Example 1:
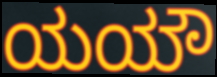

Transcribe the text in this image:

ಯಯೌ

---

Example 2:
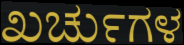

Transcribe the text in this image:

ಖರ್ಚುಗಳ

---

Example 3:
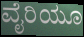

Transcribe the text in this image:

ವೈರಿಯೂ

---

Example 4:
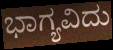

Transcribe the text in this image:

ಭಾಗ್ಯವಿದು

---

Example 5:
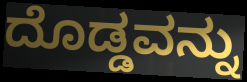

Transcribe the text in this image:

ದೊಡ್ಡವನ್ನು